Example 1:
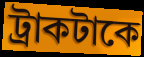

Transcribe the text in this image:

ট্রাকটাকে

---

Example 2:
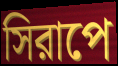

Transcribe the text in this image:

সিরাপে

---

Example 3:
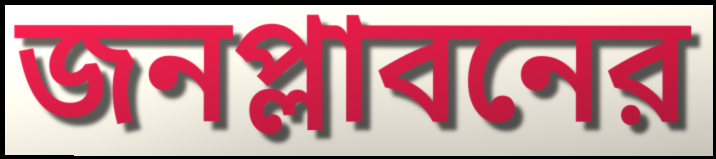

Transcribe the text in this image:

জনপ্লাবনের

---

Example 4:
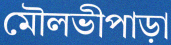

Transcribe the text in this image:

মৌলভীপাড়া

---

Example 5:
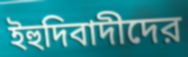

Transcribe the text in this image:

ইহুদিবাদীদের